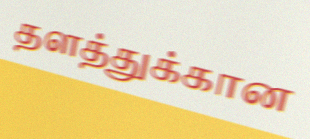
தளத்துக்கான